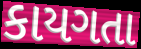
કાયગતા